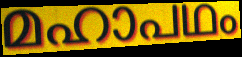
മഹാപഥം